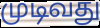
முடிவது